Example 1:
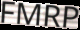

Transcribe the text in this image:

FMRP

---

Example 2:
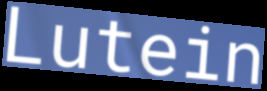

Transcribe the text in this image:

Lutein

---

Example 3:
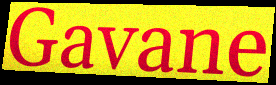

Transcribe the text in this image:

Gavane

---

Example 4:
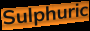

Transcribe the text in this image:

Sulphuric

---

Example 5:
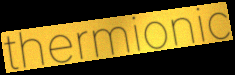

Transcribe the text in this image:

thermionic